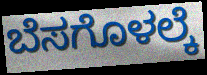
ಬೆಸಗೊಳಲ್ಕೆ